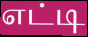
எட்டி